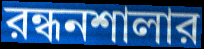
রন্ধনশালার